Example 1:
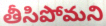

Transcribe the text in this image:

తీసిపోమని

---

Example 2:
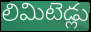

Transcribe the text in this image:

లిమిటెడ్లు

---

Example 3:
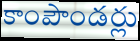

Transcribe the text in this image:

కాంపౌండర్లు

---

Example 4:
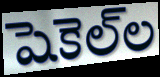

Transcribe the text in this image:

షెకెల్‌ల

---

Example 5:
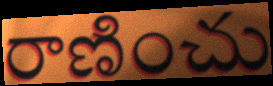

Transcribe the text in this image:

రాణించు